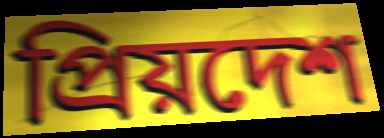
প্রিয়দেশ